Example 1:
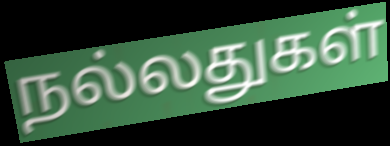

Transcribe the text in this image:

நல்லதுகள்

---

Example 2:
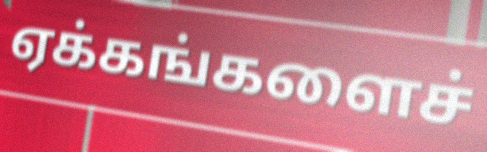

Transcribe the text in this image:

ஏக்கங்களைச்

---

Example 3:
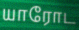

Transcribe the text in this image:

யாரோட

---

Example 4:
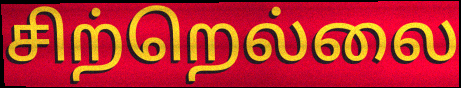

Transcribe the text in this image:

சிற்றெல்லை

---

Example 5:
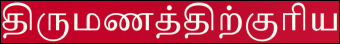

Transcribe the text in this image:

திருமணத்திற்குரிய